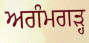
ਅਗੰਮਗੜ੍ਹ